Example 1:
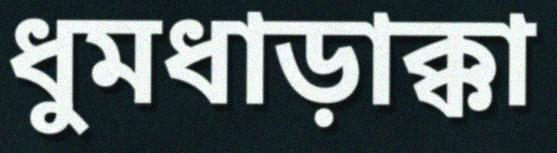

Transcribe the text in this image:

ধুমধাড়াক্কা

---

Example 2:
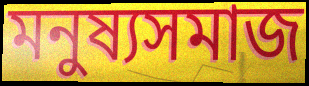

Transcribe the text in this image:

মনুষ্যসমাজ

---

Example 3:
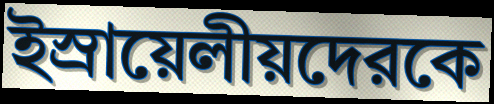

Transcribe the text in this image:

ইস্রায়েলীয়দেরকে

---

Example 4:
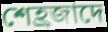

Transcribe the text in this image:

শেহ্রজাদে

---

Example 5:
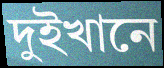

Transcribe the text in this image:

দুইখানে